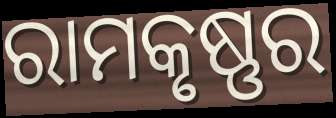
ରାମକୃଷ୍ଣର